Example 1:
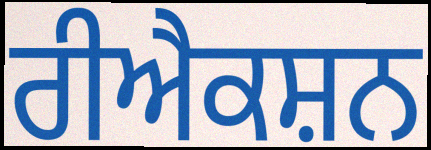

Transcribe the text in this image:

ਰੀਐਕਸ਼ਨ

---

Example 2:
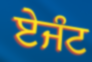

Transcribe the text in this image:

ਏਜੰਟ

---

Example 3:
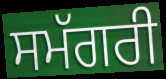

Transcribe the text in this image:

ਸਮੱਗਰੀ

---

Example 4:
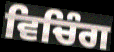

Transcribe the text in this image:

ਵਿਚਿੰਗ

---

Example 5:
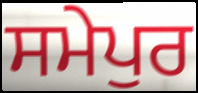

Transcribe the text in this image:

ਸਮੇਪੁਰ